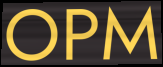
OPM